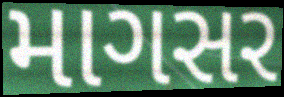
માગસર